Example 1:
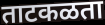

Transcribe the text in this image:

ताटकळता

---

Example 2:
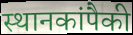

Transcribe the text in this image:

स्थानकांपैकी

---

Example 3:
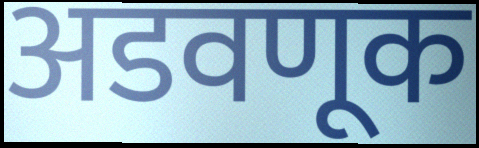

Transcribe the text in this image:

अडवणूक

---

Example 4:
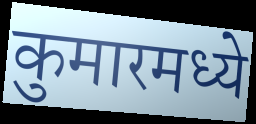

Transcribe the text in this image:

कुमारमध्ये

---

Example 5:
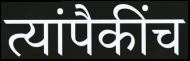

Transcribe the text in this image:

त्यांपैकींच